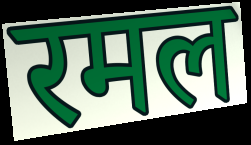
रमल